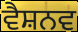
ਵੈਸ਼ਨਵ